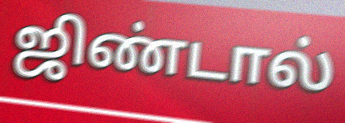
ஜிண்டால்